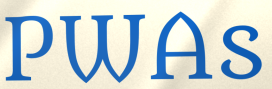
PWAs